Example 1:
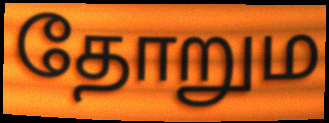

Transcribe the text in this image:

தோறும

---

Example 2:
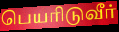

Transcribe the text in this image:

பெயரிடுவீர்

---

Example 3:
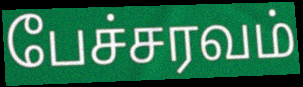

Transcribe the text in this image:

பேச்சரவம்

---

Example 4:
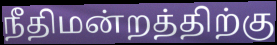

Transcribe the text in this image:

நீதிமன்றத்திற்கு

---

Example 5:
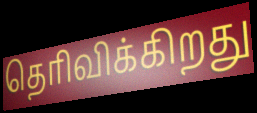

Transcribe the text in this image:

தெரிவிக்கிறது